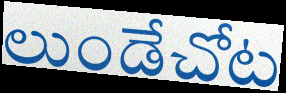
లుండేచోట